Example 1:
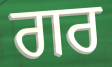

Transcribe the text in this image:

ਗਰ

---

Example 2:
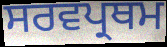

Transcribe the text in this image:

ਸਰਵਪ੍ਰਥਮ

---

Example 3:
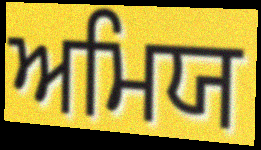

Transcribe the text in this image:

ਅਮਿਯ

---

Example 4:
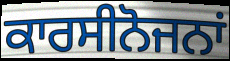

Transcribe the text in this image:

ਕਾਰਸੀਨੋਜਨਾਂ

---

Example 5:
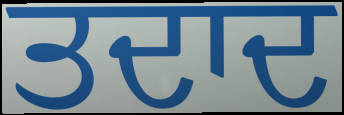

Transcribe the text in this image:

ਤਦਾਦ